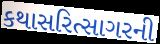
કથાસરિત્સાગરની